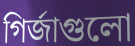
গির্জাগুলো